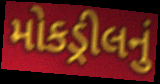
મોકડ્રીલનું